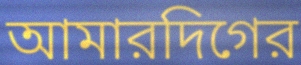
আমারদিগের